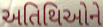
અતિથિઓને